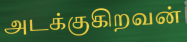
அடக்குகிறவன்